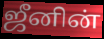
ஜீனின்